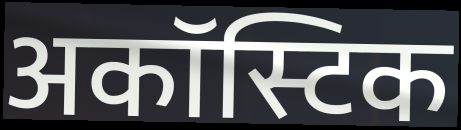
अकॉस्टिक